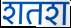
शतश